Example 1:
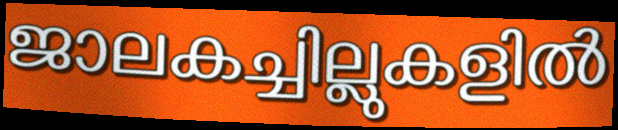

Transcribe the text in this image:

ജാലകച്ചില്ലുകളിൽ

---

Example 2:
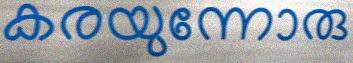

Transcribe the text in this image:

കരയുന്നോരു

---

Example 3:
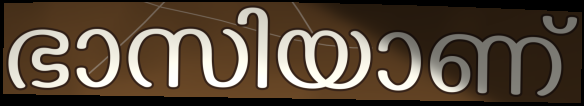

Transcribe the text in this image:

ഭാസിയാണ്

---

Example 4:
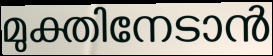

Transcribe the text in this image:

മുക്തിനേടാൻ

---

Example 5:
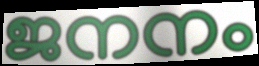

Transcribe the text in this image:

ജനനം